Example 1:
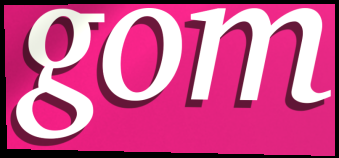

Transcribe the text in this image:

gom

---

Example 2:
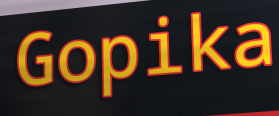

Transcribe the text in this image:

Gopika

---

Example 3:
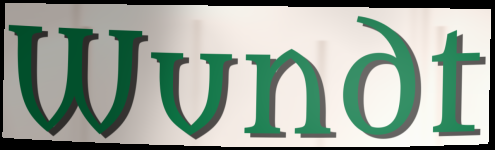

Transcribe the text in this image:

Wundt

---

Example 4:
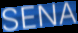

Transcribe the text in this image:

SENA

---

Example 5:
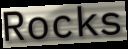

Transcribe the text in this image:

Rocks